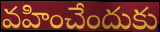
వహించేందుకు